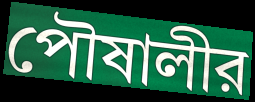
পৌষালীর